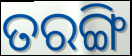
ତରଙ୍ଗି